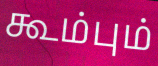
கூம்பும்